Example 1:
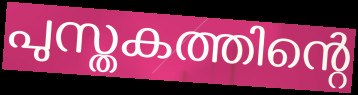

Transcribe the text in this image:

പുസ്തകത്തിന്റെ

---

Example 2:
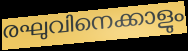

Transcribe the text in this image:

രഘുവിനെക്കാളും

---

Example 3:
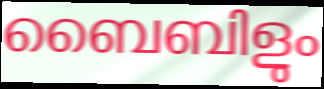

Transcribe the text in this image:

ബൈബിളും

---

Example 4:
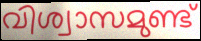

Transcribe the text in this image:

വിശ്വാസമുണ്ട്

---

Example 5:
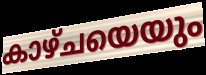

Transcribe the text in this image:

കാഴ്ചയെയും